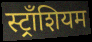
स्ट्राँशियम